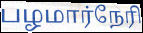
பழமார்நேரி